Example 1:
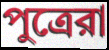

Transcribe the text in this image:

পুত্রেরা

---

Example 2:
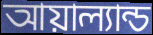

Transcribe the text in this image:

আয়াল্যান্ড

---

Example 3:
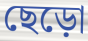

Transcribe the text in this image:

ছেড়ো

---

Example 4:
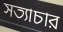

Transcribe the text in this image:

সত্যাচার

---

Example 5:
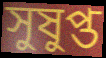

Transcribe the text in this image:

সুষুপ্ত